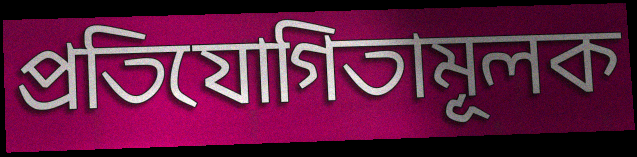
প্রতিযোগিতামূলক